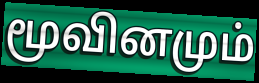
மூவினமும்